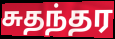
சுதந்தர